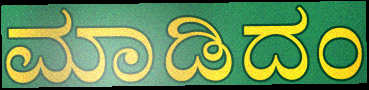
ಮಾಡಿದಂ